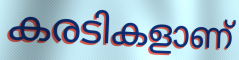
കരടികളാണ്